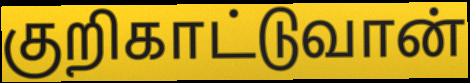
குறிகாட்டுவான்